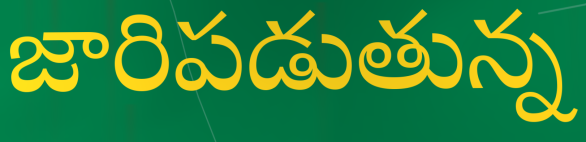
జారిపడుతున్న